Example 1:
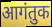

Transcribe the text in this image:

आगंतुक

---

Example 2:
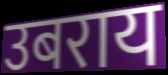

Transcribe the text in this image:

उबराय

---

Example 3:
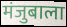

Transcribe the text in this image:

मंजुबाला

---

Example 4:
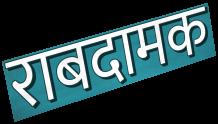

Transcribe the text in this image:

राबदामक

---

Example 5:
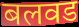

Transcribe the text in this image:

बलवड